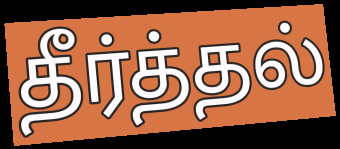
தீர்த்தல்